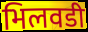
भिलवडी